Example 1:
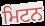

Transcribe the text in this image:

ਮਿਟਨ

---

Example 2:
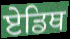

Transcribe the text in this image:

ਏਡਿਥ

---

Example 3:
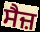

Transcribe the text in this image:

ਸੈਜ਼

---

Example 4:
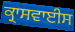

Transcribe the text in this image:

ਕ੍ਰਾਸਵਾਈਸ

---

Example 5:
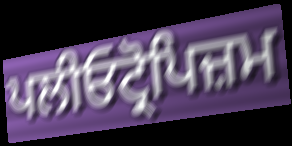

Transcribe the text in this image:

ਪਲੀਓਟ੍ਰੋਪਿਜ਼ਮ